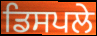
ਡਿਸਪਲੇ